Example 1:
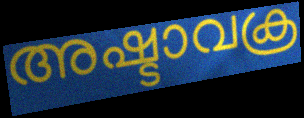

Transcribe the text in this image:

അഷ്ടാവക്ര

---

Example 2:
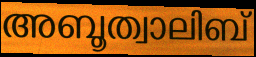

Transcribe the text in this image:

അബൂത്വാലിബ്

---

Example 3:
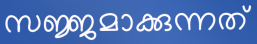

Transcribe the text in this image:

സജ്ജമാക്കുന്നത്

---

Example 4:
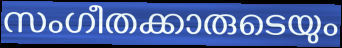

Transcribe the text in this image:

സംഗീതക്കാരുടെയും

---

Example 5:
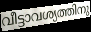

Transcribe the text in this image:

വീട്ടാവശ്യത്തിനു